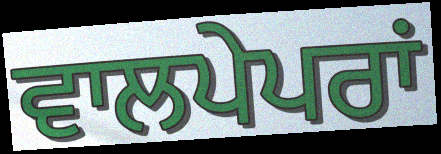
ਵਾਲਪੇਪਰਾਂ